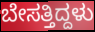
ಬೇಸತ್ತಿದ್ದಳು